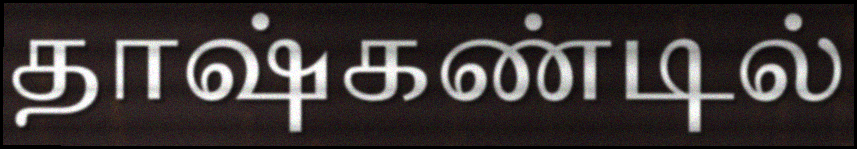
தாஷ்கண்டில்